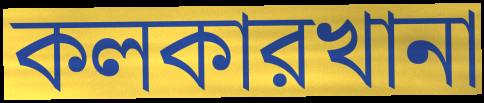
কলকারখানা